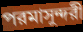
পরমাসুন্দরী